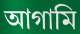
আগামি